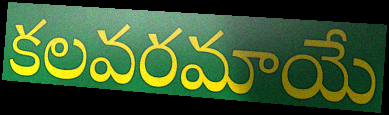
కలవరమాయే